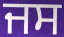
ਜਸ